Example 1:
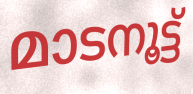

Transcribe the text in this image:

മാടനൂട്ട്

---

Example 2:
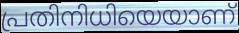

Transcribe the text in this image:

പ്രതിനിധിയെയാണ്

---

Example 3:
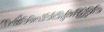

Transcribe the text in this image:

നഷ്ടപെടലുകളുടെ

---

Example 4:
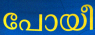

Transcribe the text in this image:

പോയീ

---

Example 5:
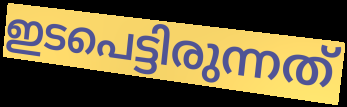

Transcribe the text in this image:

ഇടപെട്ടിരുന്നത്